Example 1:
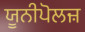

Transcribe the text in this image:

ਯੂਨੀਪੋਲਜ਼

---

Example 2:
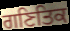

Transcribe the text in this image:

ਗਣਿਤਿਕ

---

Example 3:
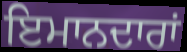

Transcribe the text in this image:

ਇਮਾਨਦਾਰਾਂ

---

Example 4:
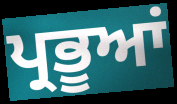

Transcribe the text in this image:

ਪ੍ਰਭੂਆਂ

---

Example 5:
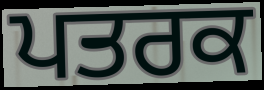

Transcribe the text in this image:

ਪਤਰਕ